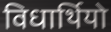
विधार्थियो